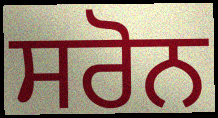
ਸਰੋਨ